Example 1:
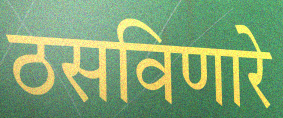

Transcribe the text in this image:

ठसविणारे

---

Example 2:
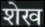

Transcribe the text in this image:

शेख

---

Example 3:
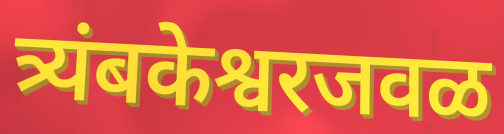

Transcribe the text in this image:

त्र्यंबकेश्वरजवळ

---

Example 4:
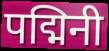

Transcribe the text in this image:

पद्मिनी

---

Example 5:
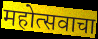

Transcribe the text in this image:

महोत्सवाचा